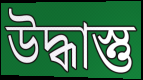
উদ্ধাস্তু